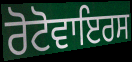
ਰੋਟੋਵਾਇਰਸ